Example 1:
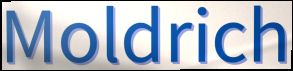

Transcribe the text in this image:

Moldrich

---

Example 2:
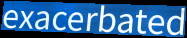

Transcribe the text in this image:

exacerbated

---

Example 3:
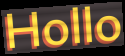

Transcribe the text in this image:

Hollo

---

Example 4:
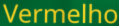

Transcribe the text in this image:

Vermelho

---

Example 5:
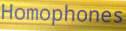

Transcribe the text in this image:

Homophones